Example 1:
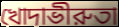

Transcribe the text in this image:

খোদাভীরুতা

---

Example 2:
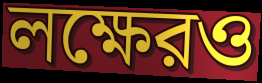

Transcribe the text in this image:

লক্ষেরও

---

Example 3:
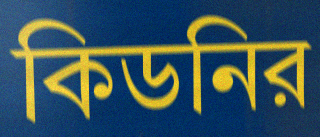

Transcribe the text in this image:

কিডনির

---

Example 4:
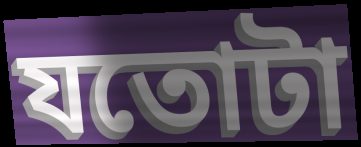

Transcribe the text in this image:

যতোটা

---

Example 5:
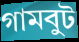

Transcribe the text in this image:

গামবুট